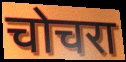
चोचरा